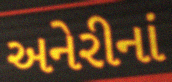
અનેરીનાં